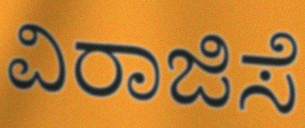
ವಿರಾಜಿಸೆ